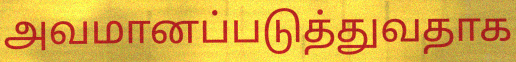
அவமானப்படுத்துவதாக